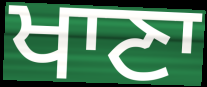
ਖਾਣਾ